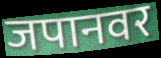
जपानवर